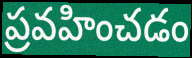
ప్రవహించడం